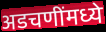
अडचणींमध्ये